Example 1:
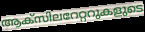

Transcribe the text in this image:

ആക്സിലറേറ്ററുകളുടെ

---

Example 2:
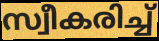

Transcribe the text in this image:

സ്വീകരിച്ച്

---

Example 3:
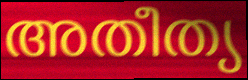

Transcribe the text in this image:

അതീത്യ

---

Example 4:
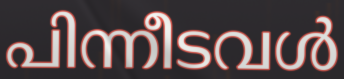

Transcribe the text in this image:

പിന്നീടവൾ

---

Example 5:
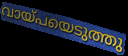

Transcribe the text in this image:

വായ്പയെടുത്തു